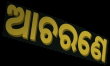
ଆଚରଣେ